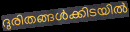
ദുരിതങ്ങൾക്കിടയിൽ